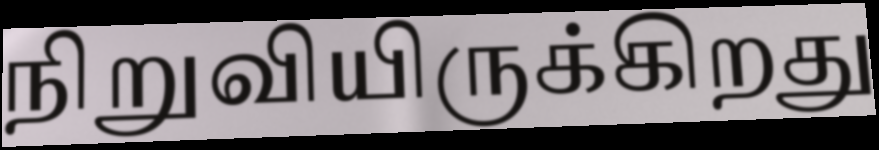
நிறுவியிருக்கிறது